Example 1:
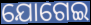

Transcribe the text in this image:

ଯୋଗେଇ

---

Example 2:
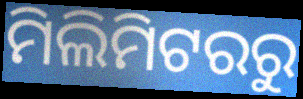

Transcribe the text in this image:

ମିଲିମିଟରରୁ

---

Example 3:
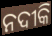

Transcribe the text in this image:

ନଦୀକି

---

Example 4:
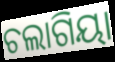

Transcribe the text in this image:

ଚଲାଗିୟା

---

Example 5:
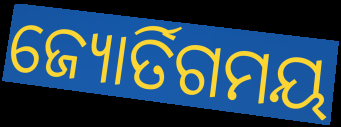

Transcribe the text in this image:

ଜ୍ୟୋର୍ତିଗମୟ